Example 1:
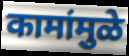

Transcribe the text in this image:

कामांमुळे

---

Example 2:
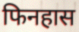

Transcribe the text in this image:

फिनहास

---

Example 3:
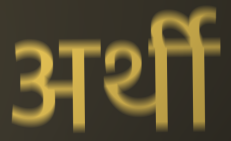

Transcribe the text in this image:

अर्थी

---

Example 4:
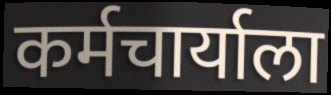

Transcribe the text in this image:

कर्मचार्याला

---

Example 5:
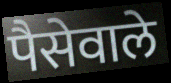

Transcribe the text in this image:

पैसेवाले